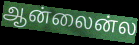
ஆன்லைன்ல